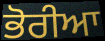
ਭੋਰੀਆ